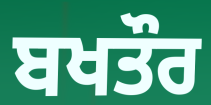
ਬਖਤੌਰ